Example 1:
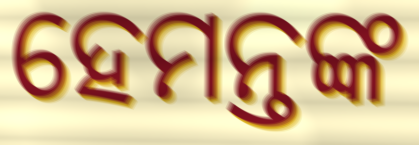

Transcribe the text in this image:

ହେମନ୍ତଙ୍କ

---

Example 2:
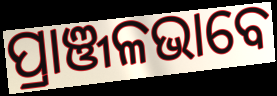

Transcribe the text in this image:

ପ୍ରାଞ୍ଜଳଭାବେ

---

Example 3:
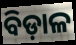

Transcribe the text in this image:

ବିଡ଼ାଳ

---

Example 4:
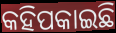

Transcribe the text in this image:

କହିପକାଇଛି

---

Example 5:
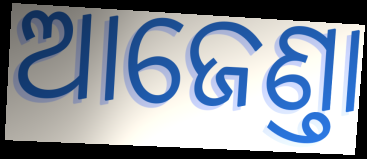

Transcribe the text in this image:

ଆଜେଣ୍ତା